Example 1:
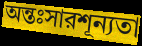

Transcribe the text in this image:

অন্তঃসারশূন্যতা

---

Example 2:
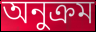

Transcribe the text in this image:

অনুক্রম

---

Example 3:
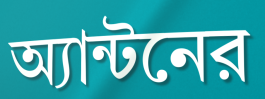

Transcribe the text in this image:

অ্যান্টনের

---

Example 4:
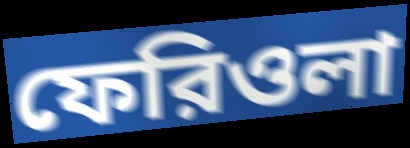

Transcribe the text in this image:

ফেরিওলা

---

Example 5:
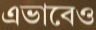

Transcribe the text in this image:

এভাবেও